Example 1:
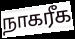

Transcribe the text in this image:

நாகரீக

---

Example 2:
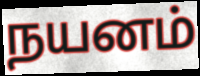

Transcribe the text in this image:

நயனம்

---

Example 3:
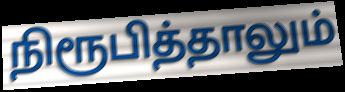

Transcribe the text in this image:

நிரூபித்தாலும்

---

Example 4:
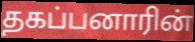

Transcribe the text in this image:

தகப்பனாரின்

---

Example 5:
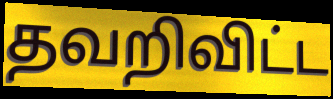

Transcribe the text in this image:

தவறிவிட்ட